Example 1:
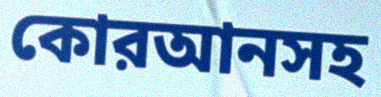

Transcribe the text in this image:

কোরআনসহ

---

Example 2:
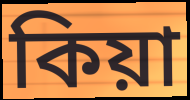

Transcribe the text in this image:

কিয়া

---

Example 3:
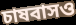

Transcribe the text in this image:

চাষবাসও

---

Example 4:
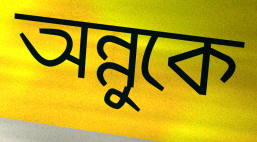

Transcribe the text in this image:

অন্নুকে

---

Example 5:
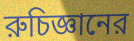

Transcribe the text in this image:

রুচিজ্ঞানের